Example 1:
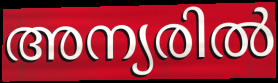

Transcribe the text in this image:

അന്യരിൽ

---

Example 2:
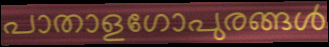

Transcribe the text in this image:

പാതാളഗോപുരങ്ങൾ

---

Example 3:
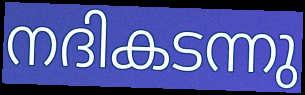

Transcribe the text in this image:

നദികടന്നു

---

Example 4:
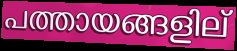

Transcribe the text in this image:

പത്തായങ്ങളില്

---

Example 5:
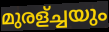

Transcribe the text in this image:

മുരള്ച്ചയും